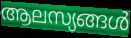
ആലസ്യങ്ങൾ